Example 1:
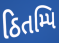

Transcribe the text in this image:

ઠિતમ્પિ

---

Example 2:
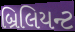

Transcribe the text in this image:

બ્રિલિયન્ટ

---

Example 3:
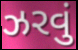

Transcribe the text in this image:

ઝરવું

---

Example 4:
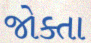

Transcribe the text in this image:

જોક્તા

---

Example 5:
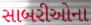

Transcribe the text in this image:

સાબરીઓના